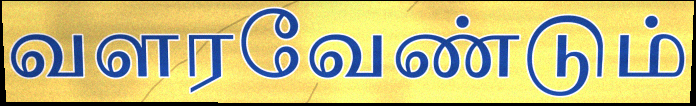
வளரவேண்டும்